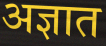
अज्ञात